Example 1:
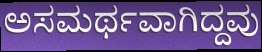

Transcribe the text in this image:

ಅಸಮರ್ಥವಾಗಿದ್ದವು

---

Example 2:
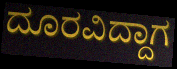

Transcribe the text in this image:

ದೂರವಿದ್ದಾಗ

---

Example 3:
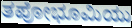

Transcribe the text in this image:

ತಪೋಭೂಮಿಯು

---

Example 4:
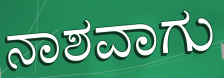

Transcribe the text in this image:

ನಾಶವಾಗು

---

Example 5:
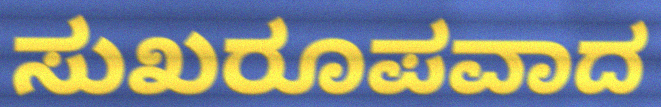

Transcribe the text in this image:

ಸುಖರೂಪವಾದ